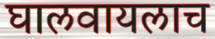
घालवायलाच